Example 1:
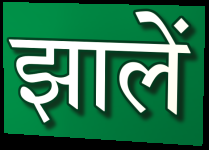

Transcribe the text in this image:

झालें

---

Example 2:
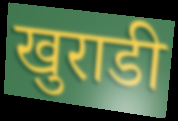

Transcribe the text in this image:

खुराडी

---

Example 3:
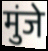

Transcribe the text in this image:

मुंजे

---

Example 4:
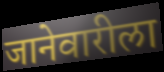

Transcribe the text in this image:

जानेवारीला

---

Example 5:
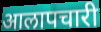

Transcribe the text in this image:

आलापचारी